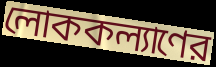
লোককল্যাণের